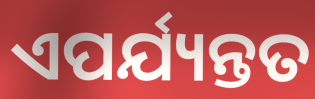
ଏପର୍ଯ୍ୟନ୍ତତ